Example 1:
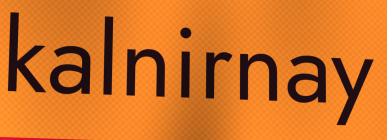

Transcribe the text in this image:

kalnirnay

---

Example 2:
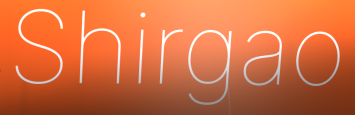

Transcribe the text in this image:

Shirgao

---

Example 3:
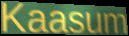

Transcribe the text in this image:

Kaasum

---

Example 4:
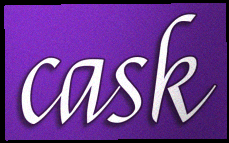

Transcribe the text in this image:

cask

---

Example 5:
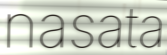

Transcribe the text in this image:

nasata